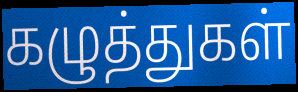
கழுத்துகள்